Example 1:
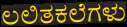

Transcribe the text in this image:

ಲಲಿತಕಲೆಗಳು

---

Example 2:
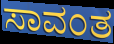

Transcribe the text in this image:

ಸಾವಂತ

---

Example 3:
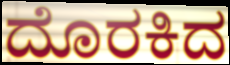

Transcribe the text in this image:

ದೊರಕಿದ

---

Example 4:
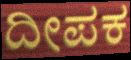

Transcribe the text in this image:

ದೀಪಕ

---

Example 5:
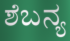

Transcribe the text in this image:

ಶೆಬನ್ಯ